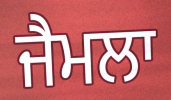
ਜੈਮਲਾ